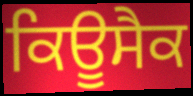
ਕਿਊਸੈਕ